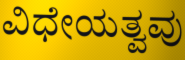
ವಿಧೇಯತ್ವವು